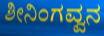
ಶೀನಿಂಗವ್ವನ